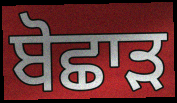
ਬੋਛਾੜ